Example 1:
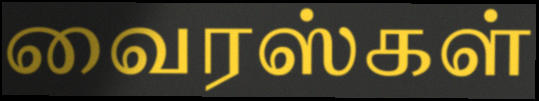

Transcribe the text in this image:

வைரஸ்கள்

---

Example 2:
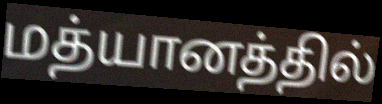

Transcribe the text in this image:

மத்யானத்தில்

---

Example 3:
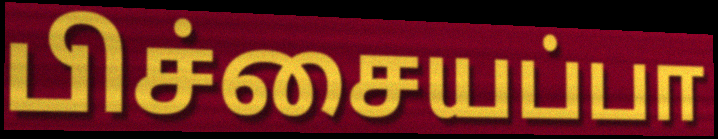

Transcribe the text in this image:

பிச்சையப்பா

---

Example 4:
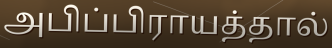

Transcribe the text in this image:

அபிப்பிராயத்தால்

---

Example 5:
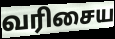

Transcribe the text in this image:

வரிசைய